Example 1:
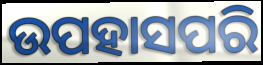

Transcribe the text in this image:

ଉପହାସପରି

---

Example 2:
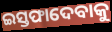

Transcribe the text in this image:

ଇସ୍ତଫାଦେବାକୁ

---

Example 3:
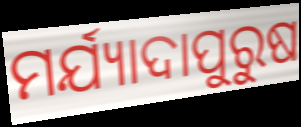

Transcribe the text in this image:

ମର୍ଯ୍ୟାଦାପୁରୁଷ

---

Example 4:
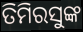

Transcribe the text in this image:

ତିମିରସୁଙ୍କ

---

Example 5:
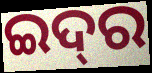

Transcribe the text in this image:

ଇଦ୍‍ର